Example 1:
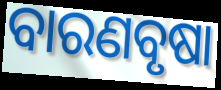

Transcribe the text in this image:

ବାରଣବୃଷା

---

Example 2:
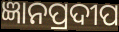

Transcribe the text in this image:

ଜ୍ଞାନପ୍ରଦୀପ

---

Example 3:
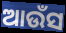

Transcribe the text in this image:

ଆଉଁସ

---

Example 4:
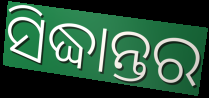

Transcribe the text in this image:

ସିଦ୍ଧାନ୍ତର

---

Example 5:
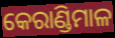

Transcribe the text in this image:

କେରାଣ୍ଡିମାଳ